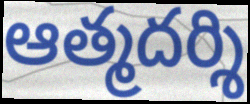
ఆత్మదర్శి